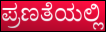
ಪ್ರಣತೆಯಲ್ಲಿ